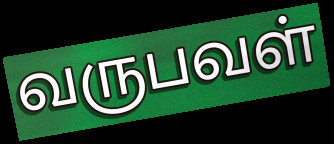
வருபவள்